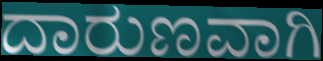
ದಾರುಣವಾಗಿ